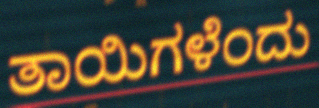
ತಾಯಿಗಳೆಂದು